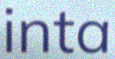
inta